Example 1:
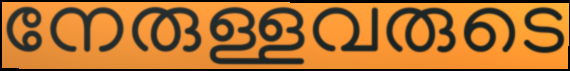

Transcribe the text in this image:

നേരുള്ളവരുടെ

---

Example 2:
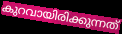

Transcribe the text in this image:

കുറവായിരിക്കുന്നത്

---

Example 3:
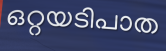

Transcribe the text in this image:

ഒറ്റയടിപാത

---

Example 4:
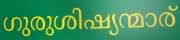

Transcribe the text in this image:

ഗുരുശിഷ്യന്മാര്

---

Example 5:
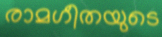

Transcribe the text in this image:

രാമഗീതയുടെ